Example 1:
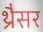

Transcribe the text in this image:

थ्रैसर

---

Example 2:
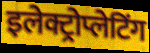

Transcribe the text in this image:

इलेक्ट्रोप्लेटिंग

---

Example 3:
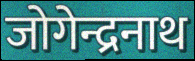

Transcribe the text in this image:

जोगेन्द्रनाथ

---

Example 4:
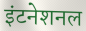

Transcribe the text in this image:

इंटनेशनल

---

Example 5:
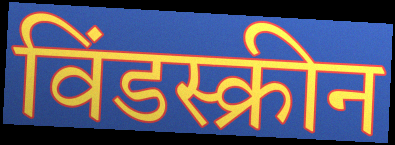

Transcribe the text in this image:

विंडस्क्रीन